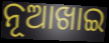
ନୂଆଖାଇ